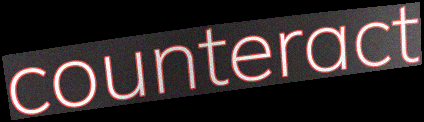
counteract